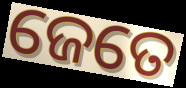
ଜେତେ